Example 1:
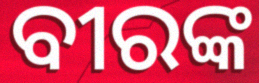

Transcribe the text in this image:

ବୀରଙ୍କ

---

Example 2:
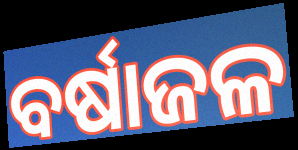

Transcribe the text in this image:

ବର୍ଷାଜଳ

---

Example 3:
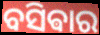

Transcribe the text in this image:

ବସିଵାର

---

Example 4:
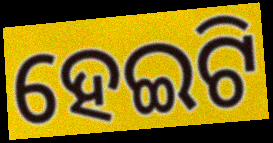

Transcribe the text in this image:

ହେଇଟି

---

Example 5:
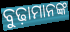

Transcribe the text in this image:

ବୁଢ଼ାମାନଙ୍କ